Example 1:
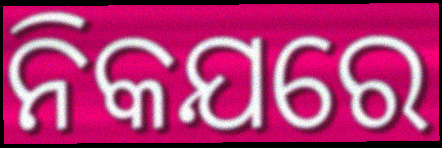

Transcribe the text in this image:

ନିକଯରେ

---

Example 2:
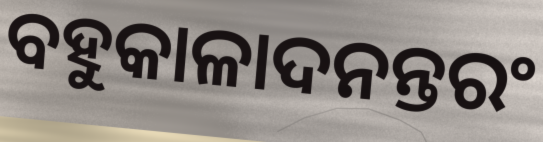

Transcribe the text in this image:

ବହୁକାଳାଦନନ୍ତରଂ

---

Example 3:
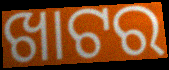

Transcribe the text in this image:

ଖାଟର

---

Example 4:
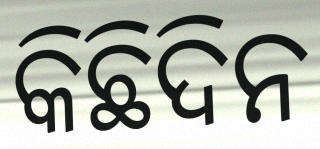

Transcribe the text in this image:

କିଛିଦିନ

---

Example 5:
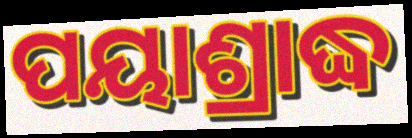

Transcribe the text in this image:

ପୟାଶ୍ରାଦ୍ଧ